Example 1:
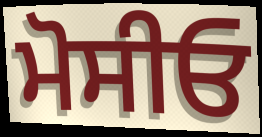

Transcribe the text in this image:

ਮੋਸੀਓ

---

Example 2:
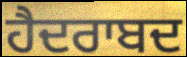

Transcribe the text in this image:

ਹੈਦਰਾਬਦ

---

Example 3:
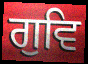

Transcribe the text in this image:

ਗੁਵਿ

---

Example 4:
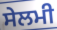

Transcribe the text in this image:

ਸੇਲਮੀ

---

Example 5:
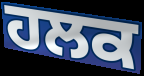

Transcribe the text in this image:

ਹਲਕ